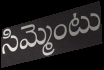
సిమ్మెంటు